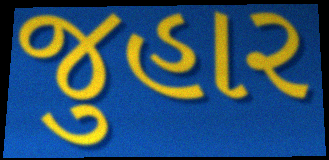
જુહાર